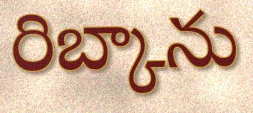
రిబ్కాను